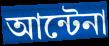
আন্টেনা